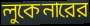
লুকেনারের